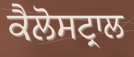
ਕੈਲੋਸਟ੍ਰਾਲ